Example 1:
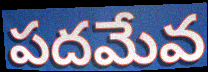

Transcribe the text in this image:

పదమేవ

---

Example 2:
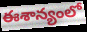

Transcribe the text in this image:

ఈశాన్యంలో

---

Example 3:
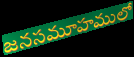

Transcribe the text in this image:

జనసమూహములో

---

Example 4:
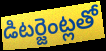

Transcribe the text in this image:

డిటర్జెంట్లతో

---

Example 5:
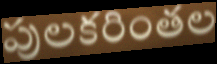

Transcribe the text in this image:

పులకరింతల